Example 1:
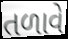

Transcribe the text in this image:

તળાવે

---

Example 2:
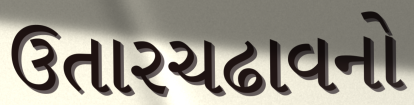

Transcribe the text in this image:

ઉતારચઢાવનો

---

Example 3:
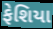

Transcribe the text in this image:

ફેશિયા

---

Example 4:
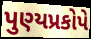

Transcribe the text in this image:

પુણ્યપ્રકોપે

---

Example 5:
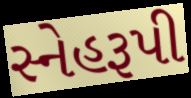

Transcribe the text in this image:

સ્નેહરૂપી